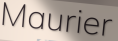
Maurier